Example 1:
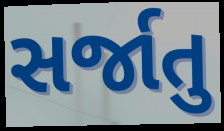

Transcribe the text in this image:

સર્જાતુ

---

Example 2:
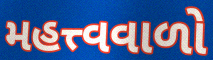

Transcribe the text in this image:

મહત્ત્વવાળો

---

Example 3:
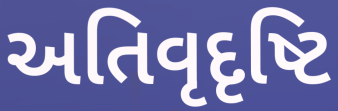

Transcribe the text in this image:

અતિવૃદૃષ્ટિ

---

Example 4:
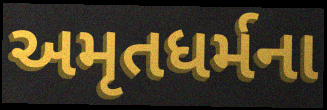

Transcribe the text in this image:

અમૃતધર્મના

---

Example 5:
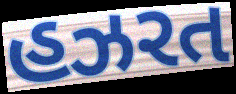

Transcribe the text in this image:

હઝરત